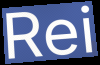
Rei